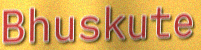
Bhuskute